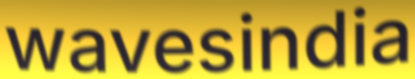
wavesindia